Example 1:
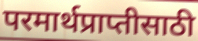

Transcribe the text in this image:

परमार्थप्राप्तीसाठी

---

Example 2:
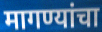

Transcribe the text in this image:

मागण्यांचा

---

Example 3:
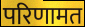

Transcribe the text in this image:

परिणामत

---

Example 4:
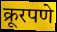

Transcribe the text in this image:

क्रूरपणे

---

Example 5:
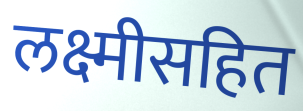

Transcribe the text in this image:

लक्ष्मीसहित